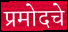
प्रमोदचे